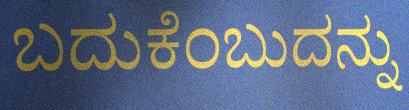
ಬದುಕೆಂಬುದನ್ನು